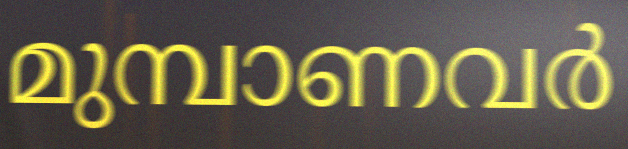
മുമ്പാണവർ